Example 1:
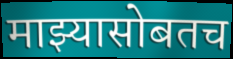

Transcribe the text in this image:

माझ्यासोबतच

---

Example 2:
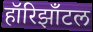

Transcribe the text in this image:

हॉरिझाँटल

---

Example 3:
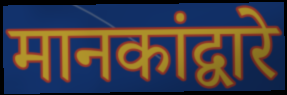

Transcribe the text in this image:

मानकांद्वारे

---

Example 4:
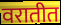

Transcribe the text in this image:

वरातीत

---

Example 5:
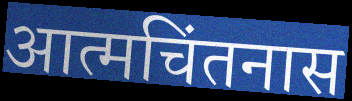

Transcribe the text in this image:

आत्मचिंतनास